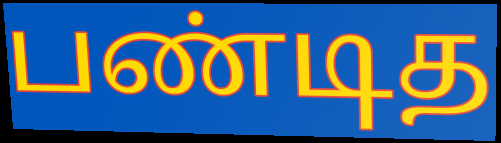
பண்டித